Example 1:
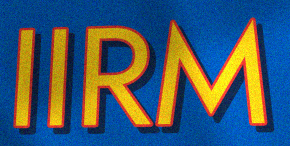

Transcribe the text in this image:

IIRM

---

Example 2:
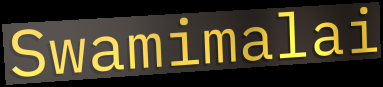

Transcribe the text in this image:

Swamimalai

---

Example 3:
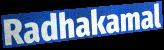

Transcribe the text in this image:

Radhakamal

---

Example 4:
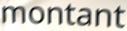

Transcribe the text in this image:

montant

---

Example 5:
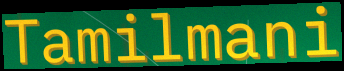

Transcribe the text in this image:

Tamilmani